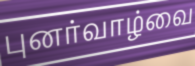
புனர்வாழ்வை